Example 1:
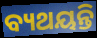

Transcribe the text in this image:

ବ୍ୟଥୟନ୍ତି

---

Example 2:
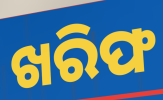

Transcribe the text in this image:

ଖରିଫ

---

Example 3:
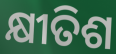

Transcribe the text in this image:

କ୍ଷୀତିଶ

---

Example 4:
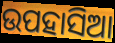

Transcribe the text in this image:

ଉପହାସିଆ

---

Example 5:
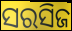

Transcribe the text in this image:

ସରସିଜ